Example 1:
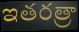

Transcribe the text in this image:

ఇతరత్రా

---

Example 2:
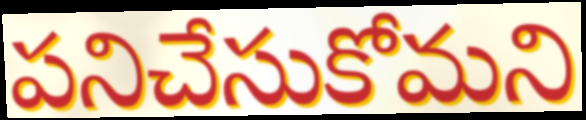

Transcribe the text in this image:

పనిచేసుకోమని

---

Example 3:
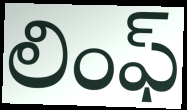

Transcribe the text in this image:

లింఫ్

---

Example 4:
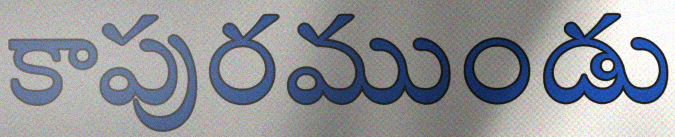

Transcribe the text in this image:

కాపురముండు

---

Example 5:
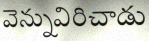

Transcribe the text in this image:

వెన్నువిరిచాడు